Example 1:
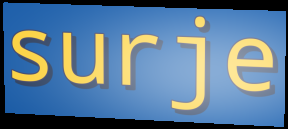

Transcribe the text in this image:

surje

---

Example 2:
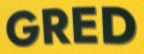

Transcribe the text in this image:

GRED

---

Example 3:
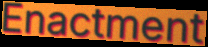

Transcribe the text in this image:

Enactment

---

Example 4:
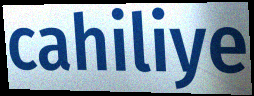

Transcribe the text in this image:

cahiliye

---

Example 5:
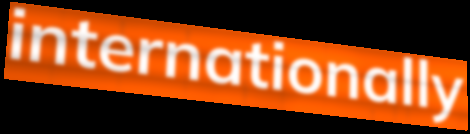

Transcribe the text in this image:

internationally